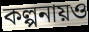
কল্পনায়ও